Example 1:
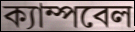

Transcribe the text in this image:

ক্যাম্পবেল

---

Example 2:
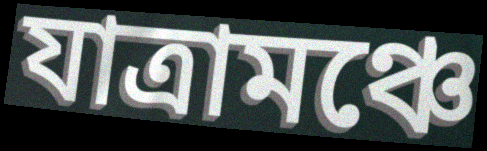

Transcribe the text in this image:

যাত্রামঞ্চে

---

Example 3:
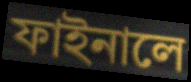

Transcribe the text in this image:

ফাইনালে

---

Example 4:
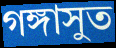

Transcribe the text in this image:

গঙ্গাসুত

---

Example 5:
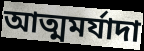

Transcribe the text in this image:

আত্মমর্যাদা